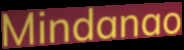
Mindanao